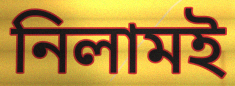
নিলামই